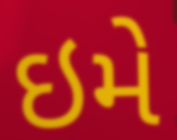
ઇમે